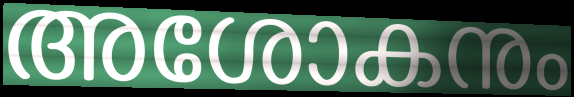
അശോകനും